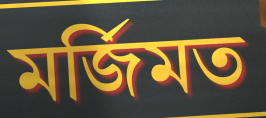
মর্জিমত